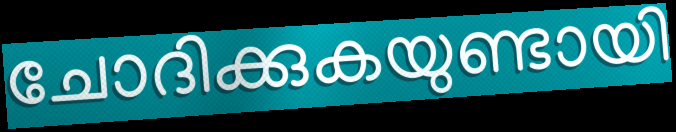
ചോദിക്കുകയുണ്ടായി